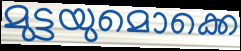
മുട്ടയുമൊക്കെ